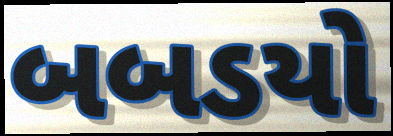
બબડયો